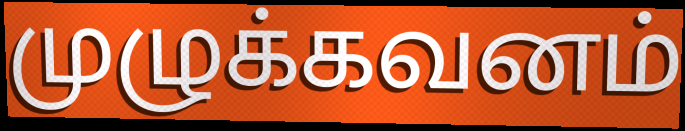
முழுக்கவனம்